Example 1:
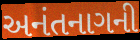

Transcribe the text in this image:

અનંતનાગની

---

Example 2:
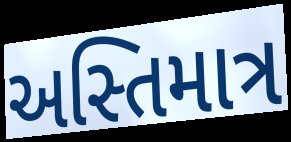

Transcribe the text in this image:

અસ્તિમાત્ર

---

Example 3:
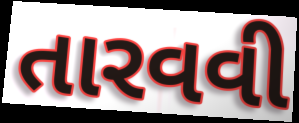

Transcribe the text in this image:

તારવવી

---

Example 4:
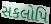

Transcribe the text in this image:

સકલોપિ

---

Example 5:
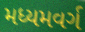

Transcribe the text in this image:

મધ્યમવર્ગ